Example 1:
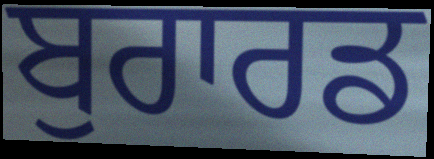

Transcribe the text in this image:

ਬੁਰਾਰਡ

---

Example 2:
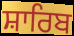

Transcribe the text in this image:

ਸ਼ਾਰਿਬ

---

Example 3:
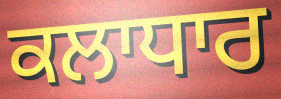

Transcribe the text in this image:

ਕਲਾਧਾਰ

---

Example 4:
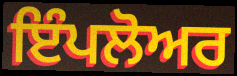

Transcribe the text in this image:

ਇੰਪਲੋਅਰ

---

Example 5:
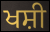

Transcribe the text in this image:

ਖਸ਼ੀ